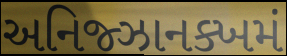
અનિજ્ઝાનક્ખમં